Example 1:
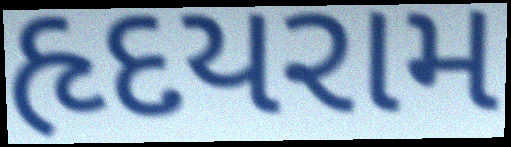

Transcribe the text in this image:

હૃદયરામ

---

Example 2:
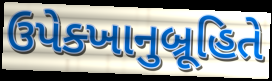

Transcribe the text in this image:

ઉપેક્ખાનુબ્રૂહિતે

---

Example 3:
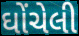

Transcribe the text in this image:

ઘોંચેલી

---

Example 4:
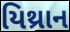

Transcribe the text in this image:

યિથ્રાન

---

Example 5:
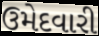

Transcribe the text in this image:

ઉમેદવારી